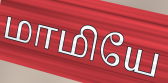
மாமியே